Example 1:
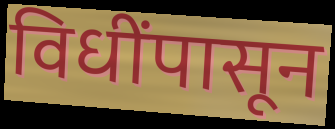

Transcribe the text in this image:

विधींपासून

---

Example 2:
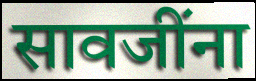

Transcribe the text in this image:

सावजींना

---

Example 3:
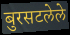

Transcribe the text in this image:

बुरसटलेले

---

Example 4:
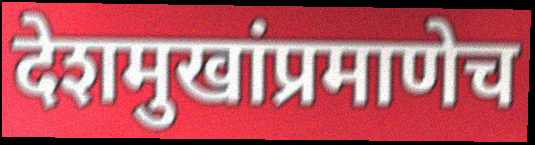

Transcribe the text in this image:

देशमुखांप्रमाणेच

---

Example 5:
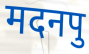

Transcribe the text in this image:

मदनपु